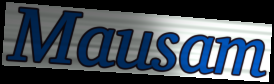
Mausam